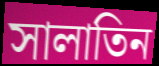
সালাতিন